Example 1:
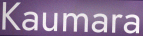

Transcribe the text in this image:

Kaumara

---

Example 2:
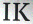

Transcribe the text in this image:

IK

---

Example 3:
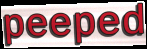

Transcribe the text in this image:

peeped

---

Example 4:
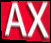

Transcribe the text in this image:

AX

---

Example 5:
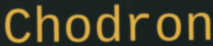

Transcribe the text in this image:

Chodron